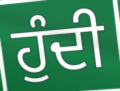
ਹੁੰਦੀ